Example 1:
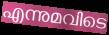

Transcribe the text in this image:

എന്നുമവിടെ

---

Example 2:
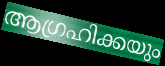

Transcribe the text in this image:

ആഗ്രഹിക്കയും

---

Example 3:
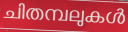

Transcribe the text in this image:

ചിതമ്പലുകൾ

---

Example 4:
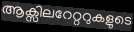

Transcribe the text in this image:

ആക്സിലറേറ്ററുകളുടെ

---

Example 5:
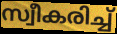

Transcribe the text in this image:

സ്വീകരിച്ച്